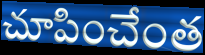
చూపించేంత